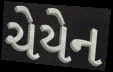
ચેયેન